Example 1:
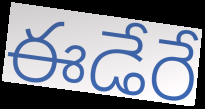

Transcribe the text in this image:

ఈడేరే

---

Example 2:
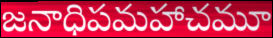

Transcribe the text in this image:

జనాధిపమహాచమూ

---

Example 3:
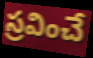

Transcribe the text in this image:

స్రవించే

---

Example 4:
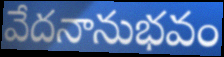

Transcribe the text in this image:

వేదనానుభవం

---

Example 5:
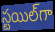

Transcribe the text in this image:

స్టయిల్‌గా